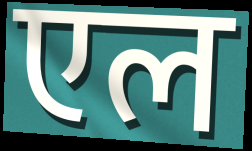
एल